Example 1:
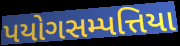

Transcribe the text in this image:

પયોગસમ્પત્તિયા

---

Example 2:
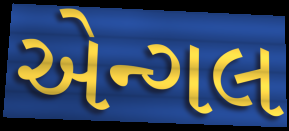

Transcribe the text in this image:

એન્ગલ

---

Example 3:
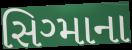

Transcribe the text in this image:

સિગ્માના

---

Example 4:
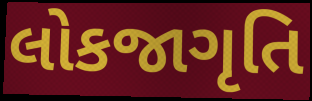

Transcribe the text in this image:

લોકજાગૃતિ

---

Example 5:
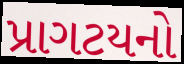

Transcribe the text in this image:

પ્રાગટયનો